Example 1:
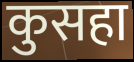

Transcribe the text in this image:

कुसहा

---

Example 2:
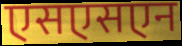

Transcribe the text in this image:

एसएसएन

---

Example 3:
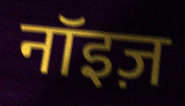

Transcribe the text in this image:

नॉइज़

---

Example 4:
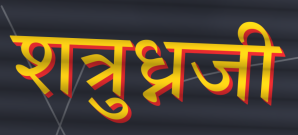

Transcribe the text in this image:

शत्रुध्नजी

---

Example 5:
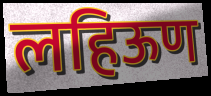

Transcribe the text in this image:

लहिऊण